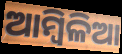
ଆମ୍ୱିଳିଆ